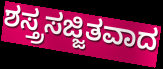
ಶಸ್ತ್ರಸಜ್ಜಿತವಾದ